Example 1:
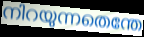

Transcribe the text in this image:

നിറയുന്നതെന്തേ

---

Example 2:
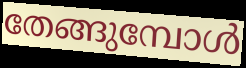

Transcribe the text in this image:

തേങ്ങുമ്പോൾ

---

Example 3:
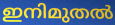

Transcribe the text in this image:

ഇനിമുതൽ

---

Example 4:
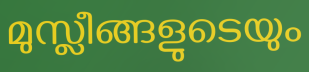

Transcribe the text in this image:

മുസ്ലീങ്ങളുടെയും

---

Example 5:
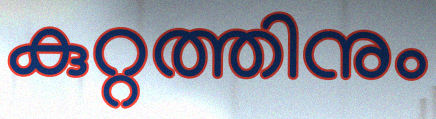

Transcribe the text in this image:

കുറ്റത്തിനും